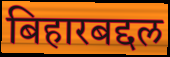
बिहारबद्दल